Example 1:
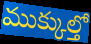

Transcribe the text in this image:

ముక్కుల్తో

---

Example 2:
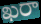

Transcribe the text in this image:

ఖరా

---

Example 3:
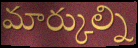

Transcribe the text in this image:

మార్కుల్ని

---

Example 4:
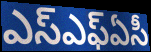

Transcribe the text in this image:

ఎస్ఎఫ్ఏసీ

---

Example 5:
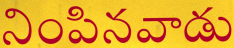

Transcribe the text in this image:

నింపినవాడు